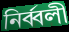
নিৰ্ব্বলী